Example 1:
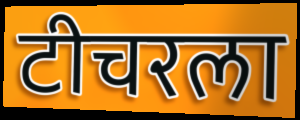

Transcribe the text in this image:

टीचरला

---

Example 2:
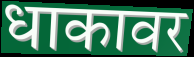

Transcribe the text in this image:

धाकावर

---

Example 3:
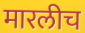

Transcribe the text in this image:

मारलीच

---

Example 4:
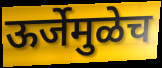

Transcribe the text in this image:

ऊर्जेमुळेच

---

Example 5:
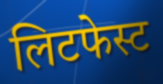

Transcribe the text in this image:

लिटफेस्ट